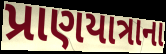
પ્રાણયાત્રાના